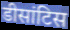
डीसांटिस